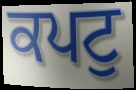
ਕਪਟੁ